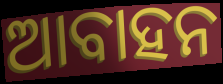
ଆବାହନ